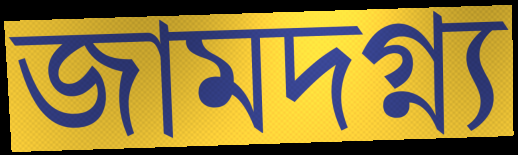
জামদগ্ন্য